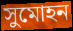
সুমোহন